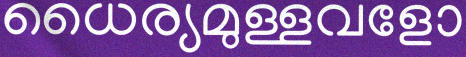
ധൈര്യമുള്ളവളോ